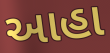
આહા